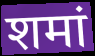
शमां